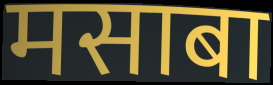
मसाबा